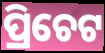
ପ୍ରିଚେଟ